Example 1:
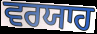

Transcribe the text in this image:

ਵਰਯਾਹ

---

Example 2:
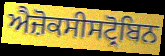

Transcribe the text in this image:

ਐਜ਼ੋਕਸੀਸਟ੍ਰੋਬਿਨ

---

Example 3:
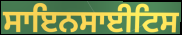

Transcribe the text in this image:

ਸਾਇਨਸਾਈਟਿਸ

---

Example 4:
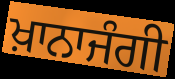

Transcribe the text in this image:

ਖ਼ਾਨਾਜੰਗੀ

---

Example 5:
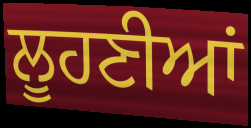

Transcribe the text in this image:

ਲੂਹਣੀਆਂ